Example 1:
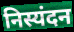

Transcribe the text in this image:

निस्यंदन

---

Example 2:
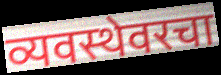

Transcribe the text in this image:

व्यवस्थेवरचा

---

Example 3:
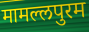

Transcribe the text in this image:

मामल्लपुरम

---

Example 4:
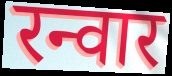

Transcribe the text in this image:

रन्वार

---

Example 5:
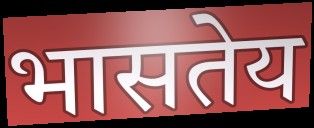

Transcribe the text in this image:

भासतेय